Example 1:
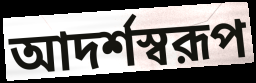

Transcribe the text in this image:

আদর্শস্বরূপ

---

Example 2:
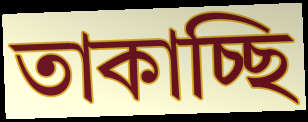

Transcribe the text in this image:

তাকাচ্ছি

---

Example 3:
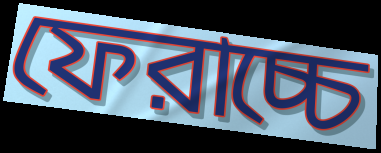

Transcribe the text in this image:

ফেরাচ্চে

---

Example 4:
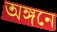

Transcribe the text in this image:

অঙ্গনে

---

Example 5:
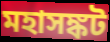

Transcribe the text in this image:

মহাসঙ্কট